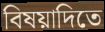
বিষয়াদিতে